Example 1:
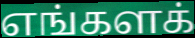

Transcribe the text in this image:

எங்களக்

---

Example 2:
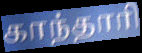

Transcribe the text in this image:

காந்தாரி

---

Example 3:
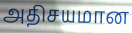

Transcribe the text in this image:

அதிசயமான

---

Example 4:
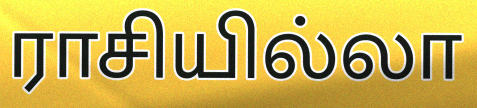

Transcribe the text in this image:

ராசியில்லா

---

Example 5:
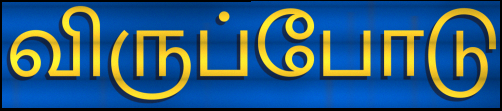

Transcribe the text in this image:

விருப்போடு